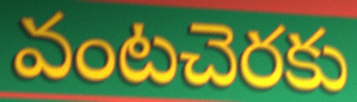
వంటచెరకు